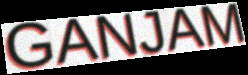
GANJAM